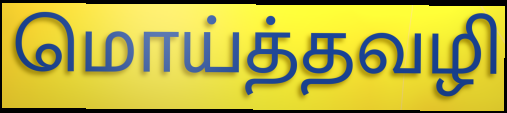
மொய்த்தவழி